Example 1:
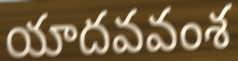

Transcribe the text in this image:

యాదవవంశ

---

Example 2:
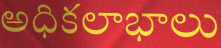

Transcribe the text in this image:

అధికలాభాలు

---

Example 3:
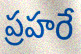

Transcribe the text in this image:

ప్రహరే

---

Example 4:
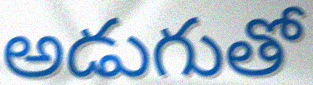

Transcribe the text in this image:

అడుగుతో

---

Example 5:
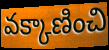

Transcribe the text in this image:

వక్కాణించి